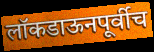
लॉकडाऊनपूर्वीच